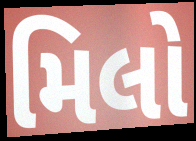
મિલો